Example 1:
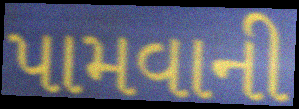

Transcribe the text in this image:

પામવાની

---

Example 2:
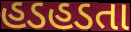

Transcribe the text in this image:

હડહડતા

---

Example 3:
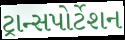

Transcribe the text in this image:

ટ્રાન્સપોર્ટેશન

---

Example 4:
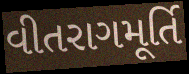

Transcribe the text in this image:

વીતરાગમૂર્તિ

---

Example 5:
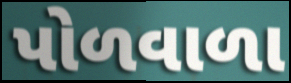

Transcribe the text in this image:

પોળવાળા